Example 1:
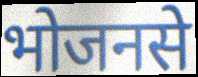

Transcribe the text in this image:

भोजनसे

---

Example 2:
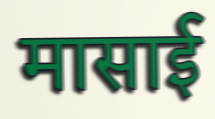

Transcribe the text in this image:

मासाई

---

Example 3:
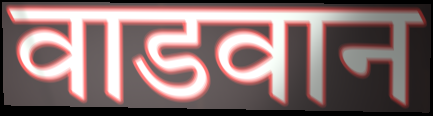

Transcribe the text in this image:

वाडवान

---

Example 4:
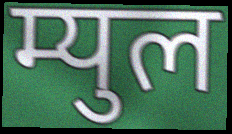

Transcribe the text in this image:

म्युल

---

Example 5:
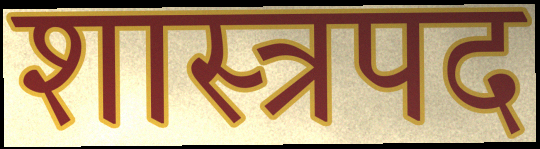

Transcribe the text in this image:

शास्त्रपद